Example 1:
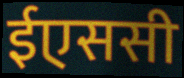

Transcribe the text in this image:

ईएससी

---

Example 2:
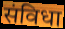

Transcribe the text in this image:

संविधा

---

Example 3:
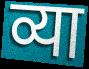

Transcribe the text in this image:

व्या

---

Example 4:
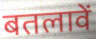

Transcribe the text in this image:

बतलावें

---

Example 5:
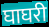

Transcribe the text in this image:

घाघरी